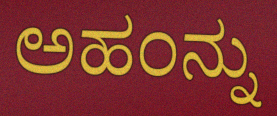
ಅಹಂನ್ನು